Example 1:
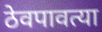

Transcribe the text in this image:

ठेवपावत्या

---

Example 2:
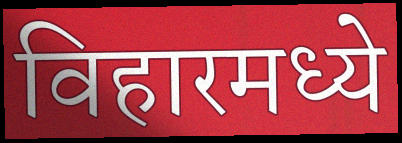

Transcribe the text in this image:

विहारमध्ये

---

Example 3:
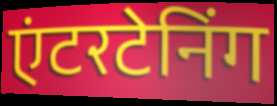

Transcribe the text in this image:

एंटरटेनिंग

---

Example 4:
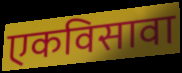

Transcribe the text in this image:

एकविसावा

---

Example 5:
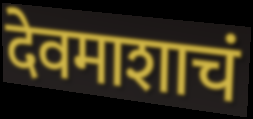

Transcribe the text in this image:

देवमाशाचं